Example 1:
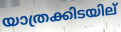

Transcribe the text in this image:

യാത്രക്കിടയില്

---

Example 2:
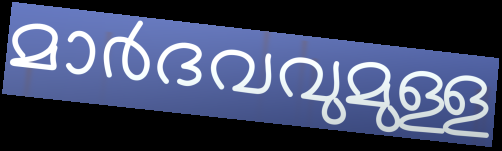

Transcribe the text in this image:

മാർദവവുമുള്ള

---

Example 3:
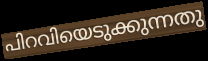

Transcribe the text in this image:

പിറവിയെടുക്കുന്നതു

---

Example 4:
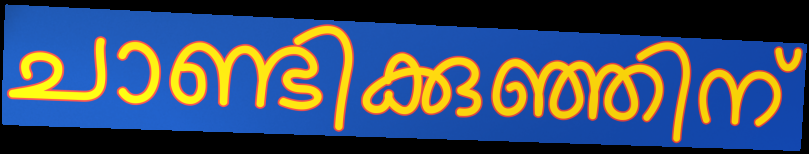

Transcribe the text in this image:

ചാണ്ടിക്കുഞ്ഞിന്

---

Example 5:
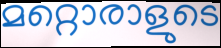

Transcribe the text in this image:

മറ്റൊരാളുടെ